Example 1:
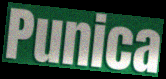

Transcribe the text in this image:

Punica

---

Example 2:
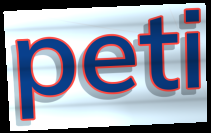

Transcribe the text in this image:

peti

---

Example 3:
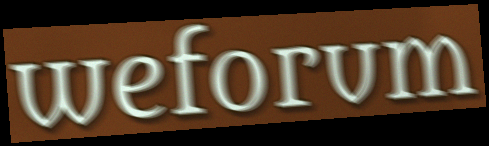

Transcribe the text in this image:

weforum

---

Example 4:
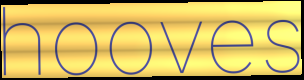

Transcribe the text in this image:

hooves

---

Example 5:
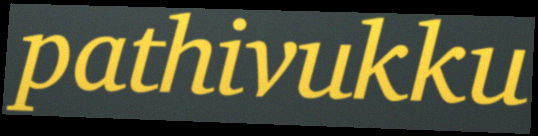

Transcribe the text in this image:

pathivukku